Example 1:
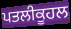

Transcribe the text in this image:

ਪਤਲੀਕੂਹਲ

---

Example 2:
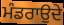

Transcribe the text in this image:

ਮੰਡਰਾਉਦੇ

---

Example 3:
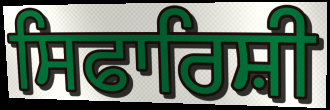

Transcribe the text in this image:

ਸਿਫਾਰਿਸ਼ੀ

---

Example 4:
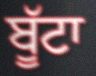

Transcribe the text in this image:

ਬੂੱਟਾ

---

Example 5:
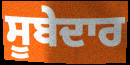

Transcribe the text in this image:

ਸੂਬੇਦਾਰ